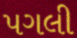
પગલી